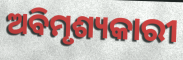
ଅବିମୃଶ୍ୟକାରୀ